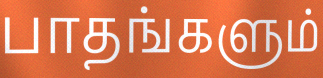
பாதங்களும்